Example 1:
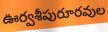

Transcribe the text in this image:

ఊర్వశీపురూరవుల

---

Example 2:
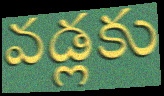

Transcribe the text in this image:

వడ్లకు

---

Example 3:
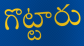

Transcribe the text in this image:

గొట్టారు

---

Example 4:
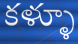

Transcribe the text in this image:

కళ్ళూ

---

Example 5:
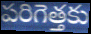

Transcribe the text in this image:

పరిగెత్తకు